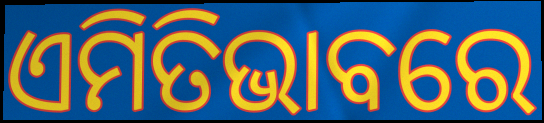
ଏମିତିଭାବରେ